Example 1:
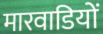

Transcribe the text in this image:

मारवाडियों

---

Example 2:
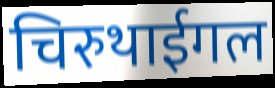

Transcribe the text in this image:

चिरुथाईगल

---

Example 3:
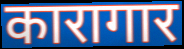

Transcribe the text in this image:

कारागार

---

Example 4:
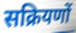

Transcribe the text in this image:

सक्रियणों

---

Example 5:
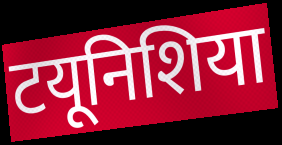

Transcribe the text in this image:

टयूनिशिया